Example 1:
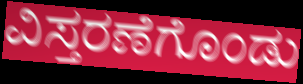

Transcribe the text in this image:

ವಿಸ್ತರಣೆಗೊಂಡು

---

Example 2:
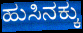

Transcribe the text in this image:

ಹುಸಿನಕ್ಕು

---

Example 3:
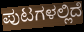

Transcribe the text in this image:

ಪುಟಗಳಲ್ಲಿದೆ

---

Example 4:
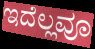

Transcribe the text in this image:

ಇದೆಲ್ಲವೂ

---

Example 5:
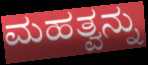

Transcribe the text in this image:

ಮಹತ್ವನ್ನು